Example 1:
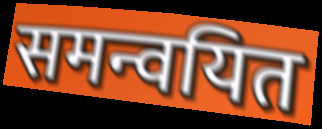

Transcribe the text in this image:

समन्वयित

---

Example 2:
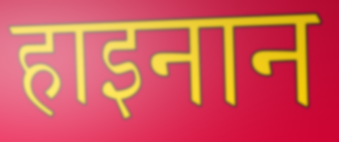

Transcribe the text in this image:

हाइनान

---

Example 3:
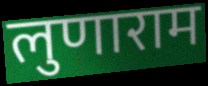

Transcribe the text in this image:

लुणाराम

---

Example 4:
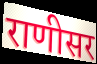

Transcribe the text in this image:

राणीसर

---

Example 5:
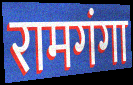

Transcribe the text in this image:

रामगंगा